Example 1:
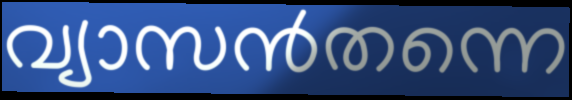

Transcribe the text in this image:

വ്യാസൻതന്നെ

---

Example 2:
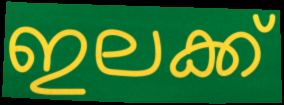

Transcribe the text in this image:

ഇലക്ക്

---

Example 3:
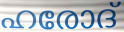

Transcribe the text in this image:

ഹരോദ്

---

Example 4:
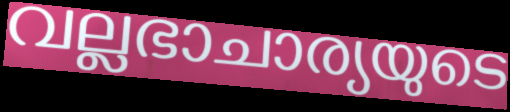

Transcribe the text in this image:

വല്ലഭാചാര്യയുടെ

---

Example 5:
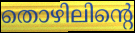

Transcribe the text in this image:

തൊഴിലിന്റെ